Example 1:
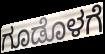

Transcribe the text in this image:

ಗೂಡೊಳಗೆ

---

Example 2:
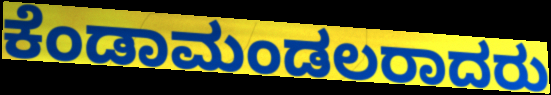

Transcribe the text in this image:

ಕೆಂಡಾಮಂಡಲರಾದರು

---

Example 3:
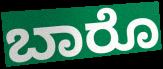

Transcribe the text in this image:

ಬಾರೊ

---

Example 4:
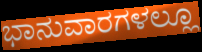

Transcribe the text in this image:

ಭಾನುವಾರಗಳಲ್ಲೂ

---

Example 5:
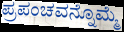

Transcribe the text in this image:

ಪ್ರಪಂಚವನ್ನೊಮ್ಮೆ